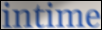
intime